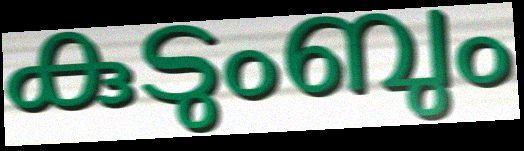
കുടുംബും